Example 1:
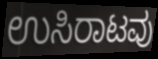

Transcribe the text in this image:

ಉಸಿರಾಟವು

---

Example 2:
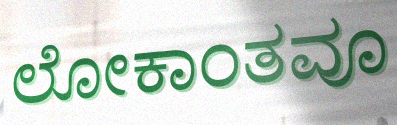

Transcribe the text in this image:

ಲೋಕಾಂತವೂ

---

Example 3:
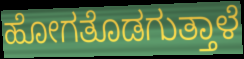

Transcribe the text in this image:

ಹೋಗತೊಡಗುತ್ತಾಳೆ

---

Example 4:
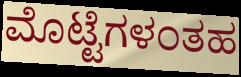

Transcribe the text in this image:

ಮೊಟ್ಟೆಗಳಂತಹ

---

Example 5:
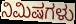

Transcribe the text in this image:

ನಿಮಿಷಗಳು